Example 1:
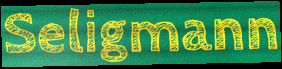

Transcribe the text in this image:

Seligmann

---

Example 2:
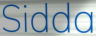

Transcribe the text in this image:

Sidda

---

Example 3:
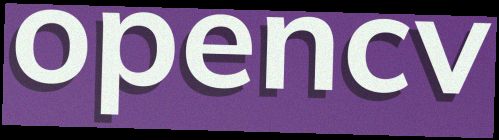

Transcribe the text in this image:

opencv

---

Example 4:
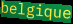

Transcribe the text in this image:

belgique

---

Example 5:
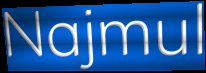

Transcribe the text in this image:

Najmul